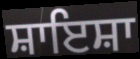
ਸ਼ਾਇਸ਼ਾ